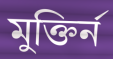
মুক্তির্ন